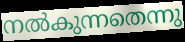
നൽകുന്നതെന്നു